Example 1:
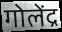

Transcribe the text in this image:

गोलेंद्र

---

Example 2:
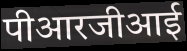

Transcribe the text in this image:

पीआरजीआई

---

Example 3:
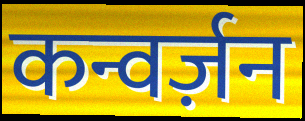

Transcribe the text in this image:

कन्वर्ज़न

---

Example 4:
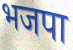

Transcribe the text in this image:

भजपा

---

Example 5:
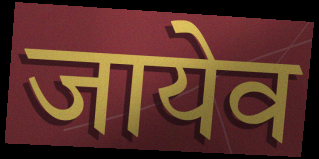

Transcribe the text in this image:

जायेव